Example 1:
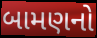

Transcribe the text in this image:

બામણનો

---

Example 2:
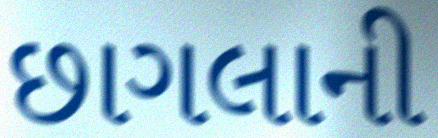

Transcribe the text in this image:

છાગલાની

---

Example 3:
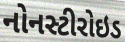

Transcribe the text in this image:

નોનસ્ટીરોઇડ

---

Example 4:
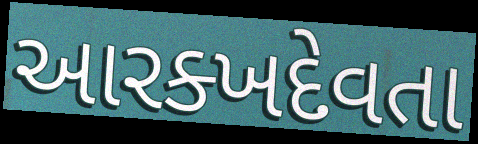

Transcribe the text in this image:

આરક્ખદેવતા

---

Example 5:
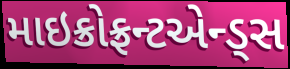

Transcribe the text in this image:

માઇક્રોફ્રન્ટએન્ડ્સ